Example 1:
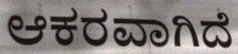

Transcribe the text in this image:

ಆಕರವಾಗಿದೆ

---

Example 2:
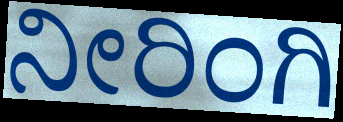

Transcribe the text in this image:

ನೀರಿಂಗಿ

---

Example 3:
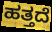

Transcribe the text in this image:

ಹತ್ತದೆ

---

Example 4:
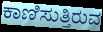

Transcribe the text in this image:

ಕಾಣಿಸುತ್ತಿರುವ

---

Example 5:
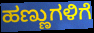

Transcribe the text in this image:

ಹಣ್ಣುಗಳಿಗೆ